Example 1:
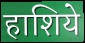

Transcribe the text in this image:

हाशिये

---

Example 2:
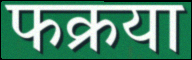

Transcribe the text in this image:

फक्रया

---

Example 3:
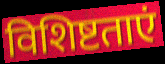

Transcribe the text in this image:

विशिष्टताएं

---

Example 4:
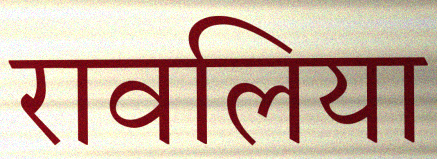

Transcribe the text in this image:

रावलिया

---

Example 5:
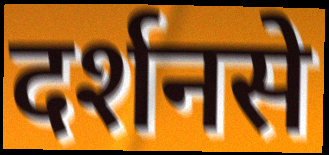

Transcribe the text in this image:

दर्शनसे